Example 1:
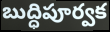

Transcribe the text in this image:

బుద్ధిపూర్వక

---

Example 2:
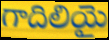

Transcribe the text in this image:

గాదిలియై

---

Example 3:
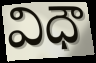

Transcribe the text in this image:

విధౌ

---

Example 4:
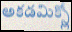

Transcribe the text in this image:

అకడమిక్స్లో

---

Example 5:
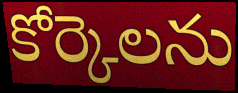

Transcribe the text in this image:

కోర్కెలను